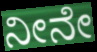
ನೀನೇ